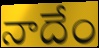
నాదేం